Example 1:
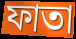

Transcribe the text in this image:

ফাতা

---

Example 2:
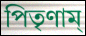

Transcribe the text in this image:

পিতৃণাম্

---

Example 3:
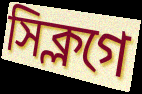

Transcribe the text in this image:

সিক্লগে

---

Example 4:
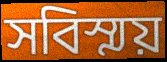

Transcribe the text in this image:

সবিস্ময়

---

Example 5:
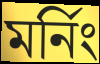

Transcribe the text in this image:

মর্নিং